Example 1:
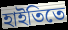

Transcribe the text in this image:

হাইতিতে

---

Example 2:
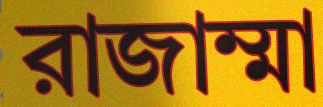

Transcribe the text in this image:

রাজাম্মা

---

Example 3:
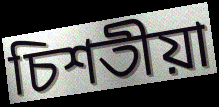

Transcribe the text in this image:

চিশতীয়া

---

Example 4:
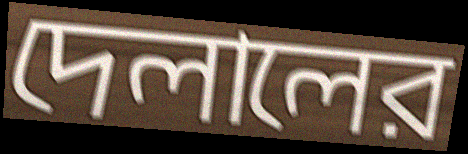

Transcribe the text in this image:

দেলালের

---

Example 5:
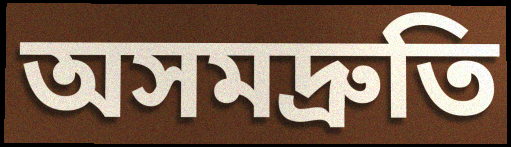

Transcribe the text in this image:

অসমদ্রুতি